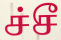
ச்சீ